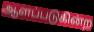
ஆளப்படுகின்ற